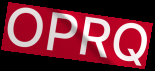
OPRQ